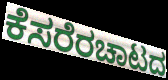
ಕೆಸರೆರಚಾಟದ